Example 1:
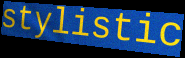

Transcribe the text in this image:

stylistic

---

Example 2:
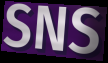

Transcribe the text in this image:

SNS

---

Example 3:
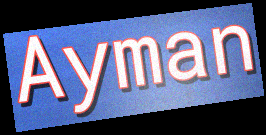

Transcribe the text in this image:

Ayman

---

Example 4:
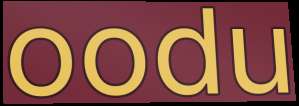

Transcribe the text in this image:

oodu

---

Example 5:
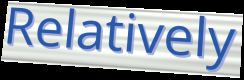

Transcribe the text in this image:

Relatively